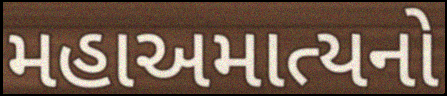
મહાઅમાત્યનો